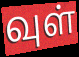
வுள்